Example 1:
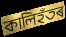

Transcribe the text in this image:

কালিহঁতৰ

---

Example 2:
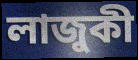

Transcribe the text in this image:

লাজুকী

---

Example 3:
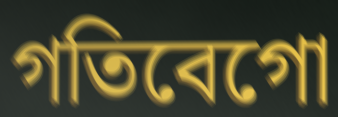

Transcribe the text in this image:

গতিবেগো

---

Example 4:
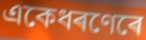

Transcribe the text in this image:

একেধৰণেৰে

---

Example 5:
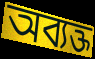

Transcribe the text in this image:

অব্যক্ত